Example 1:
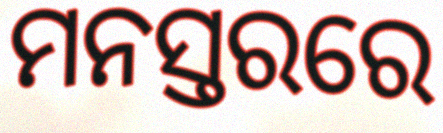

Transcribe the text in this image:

ମନସ୍ତରରେ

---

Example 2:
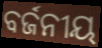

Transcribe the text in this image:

ବର୍ଜନୀୟ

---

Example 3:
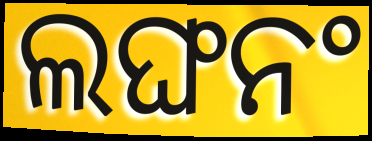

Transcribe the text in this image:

ଲଙ୍ଘନଂ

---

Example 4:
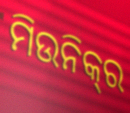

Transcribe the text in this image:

ମିଉନିକ୍‌ର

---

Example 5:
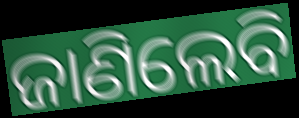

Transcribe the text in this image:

ଜାଣିଲେବି